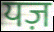
यज़